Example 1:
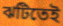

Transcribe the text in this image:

ঝটিতেই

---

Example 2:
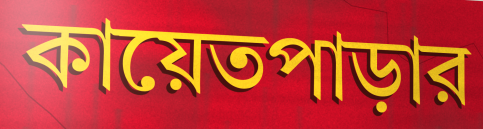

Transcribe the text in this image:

কায়েতপাড়ার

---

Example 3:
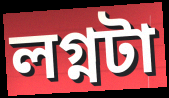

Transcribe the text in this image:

লগ্নটা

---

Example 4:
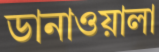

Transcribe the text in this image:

ডানাওয়ালা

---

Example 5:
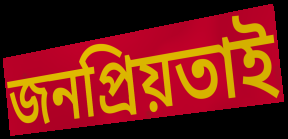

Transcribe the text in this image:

জনপ্রিয়তাই